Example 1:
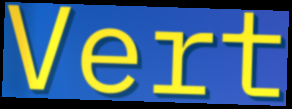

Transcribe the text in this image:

Vert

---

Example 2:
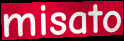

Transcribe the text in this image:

misato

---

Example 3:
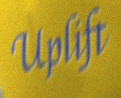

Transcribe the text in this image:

Uplift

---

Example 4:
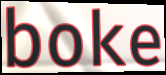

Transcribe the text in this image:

boke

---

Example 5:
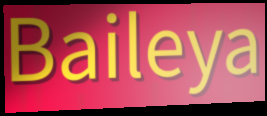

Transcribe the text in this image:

Baileya